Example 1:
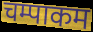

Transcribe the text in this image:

चम्पाकम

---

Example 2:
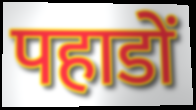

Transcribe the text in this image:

पहाडों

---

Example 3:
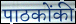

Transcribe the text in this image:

पाठकोंकी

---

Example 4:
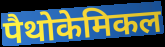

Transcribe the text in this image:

पैथोकेमिकल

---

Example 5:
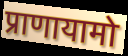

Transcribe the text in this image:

प्राणायामो